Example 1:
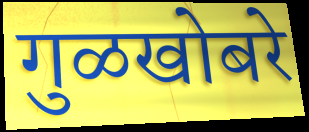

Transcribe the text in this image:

गुळखोबरे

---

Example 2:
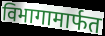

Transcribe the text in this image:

विभागामार्फत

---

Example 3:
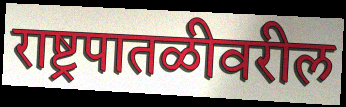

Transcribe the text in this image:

राष्ट्रपातळीवरील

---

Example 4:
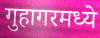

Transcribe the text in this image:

गुहागरमध्ये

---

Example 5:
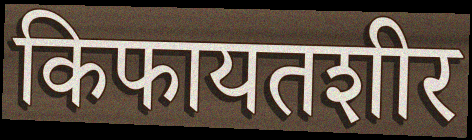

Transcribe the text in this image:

किफायतशीर